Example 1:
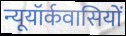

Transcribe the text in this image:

न्यूयॉर्कवासियों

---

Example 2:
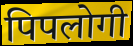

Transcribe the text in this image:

पिपलोगी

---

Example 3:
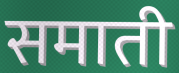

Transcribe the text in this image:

समाती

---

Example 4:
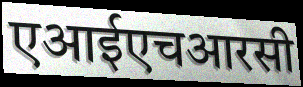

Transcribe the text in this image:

एआईएचआरसी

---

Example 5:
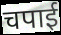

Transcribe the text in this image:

चपाई